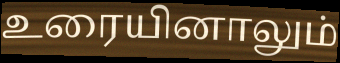
உரையினாலும்